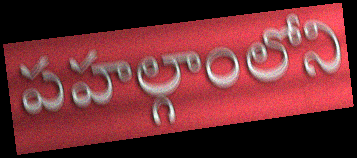
పహల్గాంలోని